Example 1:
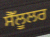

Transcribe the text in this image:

ਸੈੱਲੂਲਰ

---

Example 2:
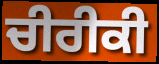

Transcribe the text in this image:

ਚੀਰੀਕੀ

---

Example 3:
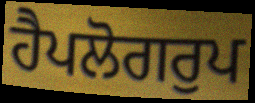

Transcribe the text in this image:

ਹੈਪਲੋਗਰੁਪ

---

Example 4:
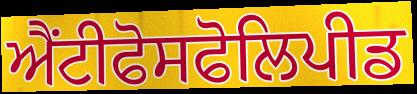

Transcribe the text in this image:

ਐਂਟੀਫੋਸਫੋਲਿਪੀਡ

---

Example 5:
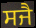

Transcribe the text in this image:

ਸਜੈ